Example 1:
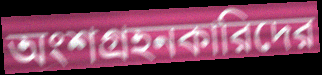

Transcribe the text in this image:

অংশগ্রহনকারিদের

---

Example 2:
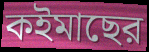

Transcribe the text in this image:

কইমাছের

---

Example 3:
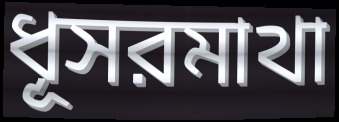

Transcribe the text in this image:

ধূসরমাথা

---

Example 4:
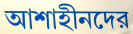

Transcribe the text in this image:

আশাহীনদের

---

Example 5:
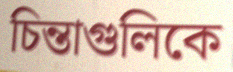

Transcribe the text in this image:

চিন্তাগুলিকে